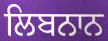
ਲਿਬਨਾਨ